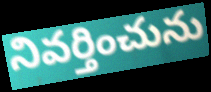
నివర్తించును